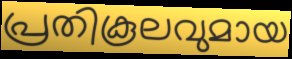
പ്രതികൂലവുമായ